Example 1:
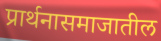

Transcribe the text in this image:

प्रार्थनासमाजातील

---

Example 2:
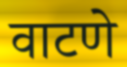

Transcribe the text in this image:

वाटणे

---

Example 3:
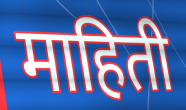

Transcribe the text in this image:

माहिती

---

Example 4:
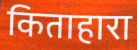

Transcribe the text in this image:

किताहारा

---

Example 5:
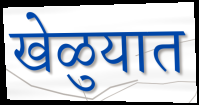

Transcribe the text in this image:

खेळुयात